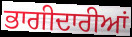
ਭਾਗੀਦਾਰੀਆਂ